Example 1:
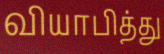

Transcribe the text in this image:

வியாபித்து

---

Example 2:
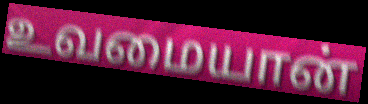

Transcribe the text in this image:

உவமையான்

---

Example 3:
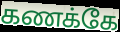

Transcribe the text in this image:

கணக்கே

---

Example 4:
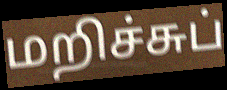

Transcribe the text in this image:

மறிச்சுப்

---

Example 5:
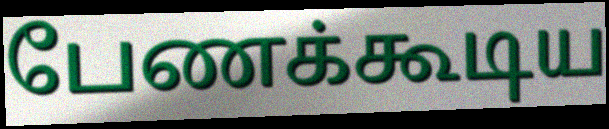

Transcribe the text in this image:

பேணக்கூடிய